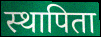
स्थापिता